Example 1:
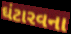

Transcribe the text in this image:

ઘંટારવના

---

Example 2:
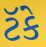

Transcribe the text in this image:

ટૅંકે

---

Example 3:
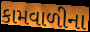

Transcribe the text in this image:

કામવાળીના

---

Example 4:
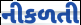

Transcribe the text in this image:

નીકળતી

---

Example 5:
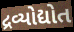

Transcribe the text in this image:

દ્રવ્યોદ્યોત